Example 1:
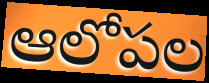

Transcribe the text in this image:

ఆలోపల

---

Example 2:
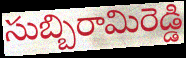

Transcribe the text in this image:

సుబ్బిరామిరెడ్డి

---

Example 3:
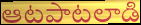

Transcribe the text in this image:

ఆటపాటలాడి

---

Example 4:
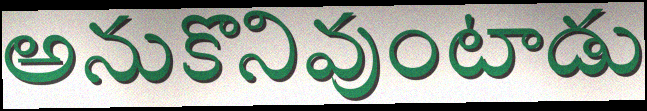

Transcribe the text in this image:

అనుకొనివుంటాడు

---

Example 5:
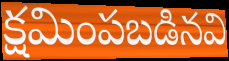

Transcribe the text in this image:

క్షమింపబడినవి